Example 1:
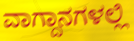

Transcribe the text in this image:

ವಾಗ್ದಾನಗಳಲ್ಲಿ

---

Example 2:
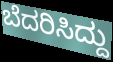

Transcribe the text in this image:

ಬೆದರಿಸಿದ್ದು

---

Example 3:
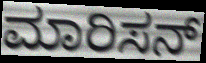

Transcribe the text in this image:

ಮಾರಿಸನ್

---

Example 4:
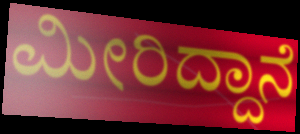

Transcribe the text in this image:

ಮೀರಿದ್ದಾನೆ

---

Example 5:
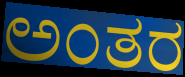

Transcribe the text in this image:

ಅಂತರ